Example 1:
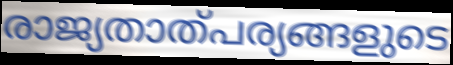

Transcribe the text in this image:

രാജ്യതാത്പര്യങ്ങളുടെ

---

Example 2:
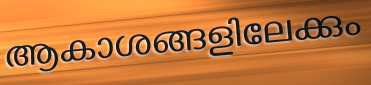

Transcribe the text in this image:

ആകാശങ്ങളിലേക്കും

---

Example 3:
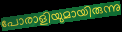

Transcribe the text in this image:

പോരാളിയുമായിരുന്നു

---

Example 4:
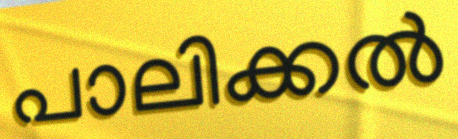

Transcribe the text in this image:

പാലിക്കൽ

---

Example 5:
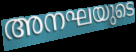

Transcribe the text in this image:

അനഘയുടെ